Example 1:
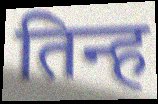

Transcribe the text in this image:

तिन्ह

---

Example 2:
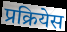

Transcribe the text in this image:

प्रक्रियेस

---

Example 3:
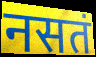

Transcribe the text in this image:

नसतं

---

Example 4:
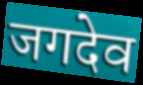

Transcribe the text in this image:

जगदेव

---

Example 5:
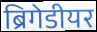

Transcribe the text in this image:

ब्रिगेडीयर